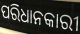
ପରିଧାନକାରୀ